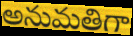
అనుమతిగా